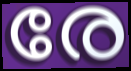
രേ